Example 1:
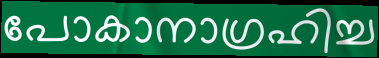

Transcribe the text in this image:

പോകാനാഗ്രഹിച്ച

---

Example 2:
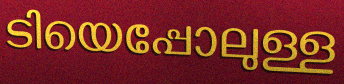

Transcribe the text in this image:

ടിയെപ്പോലുള്ള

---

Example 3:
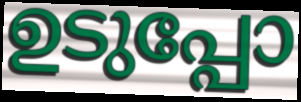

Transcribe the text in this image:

ഉടുപ്പോ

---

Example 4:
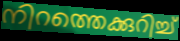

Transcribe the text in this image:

നിറത്തെക്കുറിച്ച്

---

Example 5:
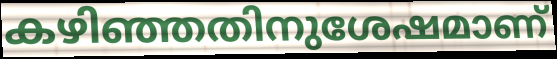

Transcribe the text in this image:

കഴിഞ്ഞതിനുശേഷമാണ്